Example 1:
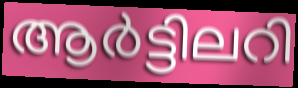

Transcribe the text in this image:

ആർട്ടിലറി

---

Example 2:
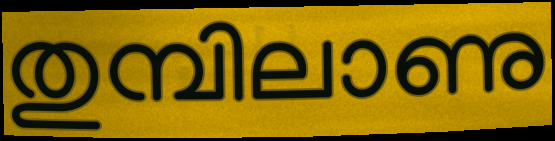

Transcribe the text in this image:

തുമ്പിലാണു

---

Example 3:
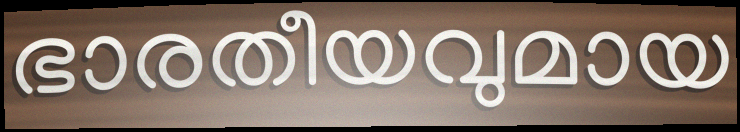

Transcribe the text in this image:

ഭാരതീയവുമായ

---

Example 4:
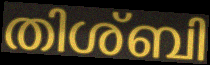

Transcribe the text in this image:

തിശ്ബി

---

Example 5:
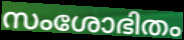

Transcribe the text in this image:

സംശോഭിതം